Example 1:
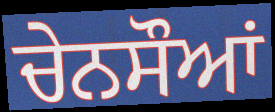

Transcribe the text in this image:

ਚੇਨਸੌਆਂ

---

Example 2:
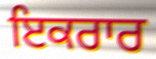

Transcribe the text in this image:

ਇਕਰਾਰ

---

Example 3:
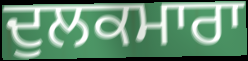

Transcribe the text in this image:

ਦੁਲਕਮਾਰਾ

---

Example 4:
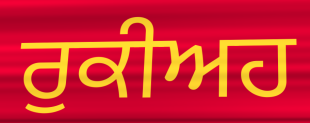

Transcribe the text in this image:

ਰੁਕੀਅਹ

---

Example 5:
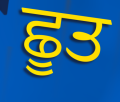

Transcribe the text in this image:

ਛੂਤ